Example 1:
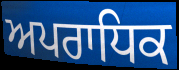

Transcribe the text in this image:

ਅਪਰਾਧਿਕ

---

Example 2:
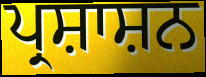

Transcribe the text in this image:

ਪ੍ਰਸ਼ਾਸ਼ਨ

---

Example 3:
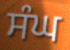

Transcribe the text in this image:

ਸੰਘ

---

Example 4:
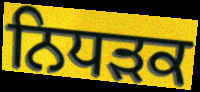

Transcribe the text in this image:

ਨਿਧਡ਼ਕ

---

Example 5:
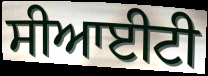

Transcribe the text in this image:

ਸੀਆਈਟੀ